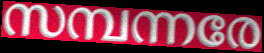
സമ്പന്നരേ